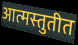
आत्मस्तुतीत